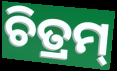
ଚିତ୍ରମ୍